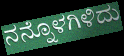
ನನ್ನೊಳಗಿಳಿದು